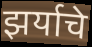
झर्याचे